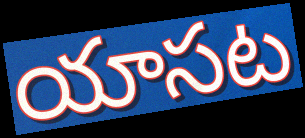
యాసట